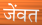
जेंवत